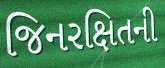
જિનરક્ષિતની